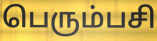
பெரும்பசி